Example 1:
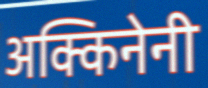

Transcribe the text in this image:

अक्किनेनी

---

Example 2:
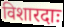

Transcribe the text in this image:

विशारदाः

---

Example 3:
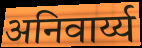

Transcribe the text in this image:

अनिवार्य्य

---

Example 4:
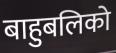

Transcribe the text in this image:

बाहुबलिको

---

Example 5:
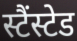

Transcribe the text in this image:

स्टैंस्टेड